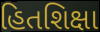
હિતશિક્ષા